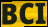
BCI